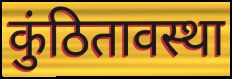
कुंठितावस्था